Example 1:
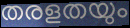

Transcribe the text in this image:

തരളതയും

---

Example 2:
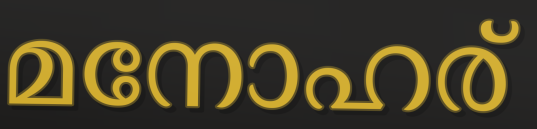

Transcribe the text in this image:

മനോഹര്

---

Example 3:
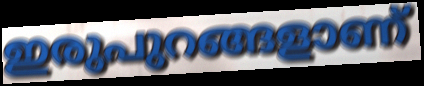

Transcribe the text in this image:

ഇരുപുറങ്ങളാണ്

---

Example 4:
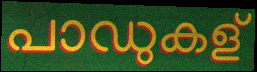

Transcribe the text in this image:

പാഡുകള്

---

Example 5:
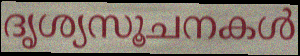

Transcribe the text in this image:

ദൃശ്യസൂചനകൾ